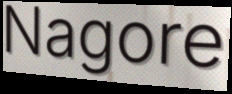
Nagore